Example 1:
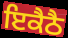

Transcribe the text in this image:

ਇਕੈਠੈ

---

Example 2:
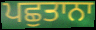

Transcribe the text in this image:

ਪਛੁਤਾਨਾ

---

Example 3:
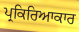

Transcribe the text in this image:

ਪ੍ਰਕਿਰਿਆਕਾਰ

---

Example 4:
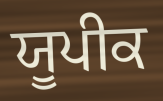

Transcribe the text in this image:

ਯੂਪੀਕ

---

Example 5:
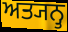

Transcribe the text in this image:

ਅਤ੍ਯਨ੍ਤ